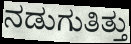
ನಡುಗುತಿತ್ತು